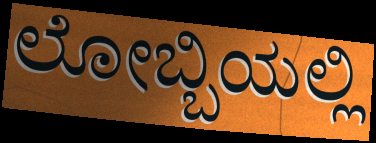
ಲೋಬ್ಬಿಯಲ್ಲಿ